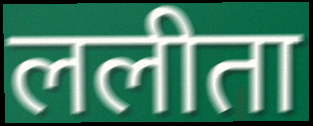
ललीता